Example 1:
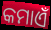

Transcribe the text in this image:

କମାଏଁ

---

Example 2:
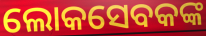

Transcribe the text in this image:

ଲୋକସେବକଙ୍କ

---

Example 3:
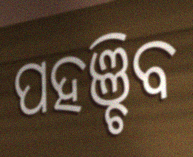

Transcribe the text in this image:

ପହଞ୍ଚିବ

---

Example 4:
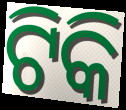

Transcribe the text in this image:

ଟିକି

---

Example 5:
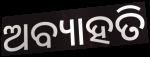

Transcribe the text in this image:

ଅବ୍ୟାହତି